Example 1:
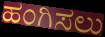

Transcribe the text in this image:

ಹಂಗಿಸಲು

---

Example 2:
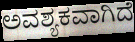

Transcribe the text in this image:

ಅವಶ್ಯಕವಾಗಿದೆ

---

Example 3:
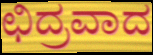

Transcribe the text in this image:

ಛಿದ್ರವಾದ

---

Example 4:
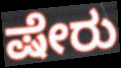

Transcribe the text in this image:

ಷೇರು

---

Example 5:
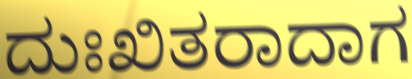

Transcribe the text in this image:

ದುಃಖಿತರಾದಾಗ